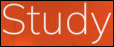
Study